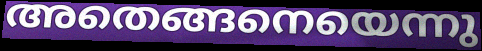
അതെങ്ങനെയെന്നു